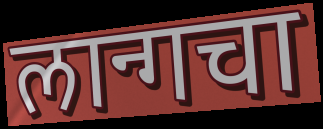
लान्गचा